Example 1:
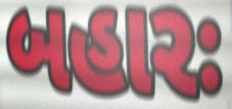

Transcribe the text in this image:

બહારઃ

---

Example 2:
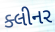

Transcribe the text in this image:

ક્લીનર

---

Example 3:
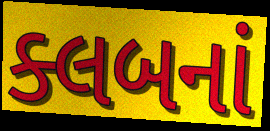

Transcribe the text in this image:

ક્લબનાં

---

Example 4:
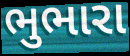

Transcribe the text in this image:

ભુભારા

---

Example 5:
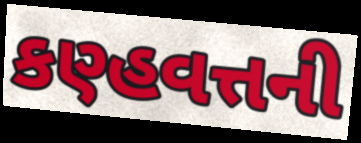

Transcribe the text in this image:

કણ્હવત્તની